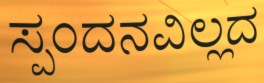
ಸ್ಪಂದನವಿಲ್ಲದ